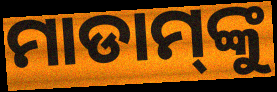
ମାଡାମ୍‌ଙ୍କୁ